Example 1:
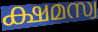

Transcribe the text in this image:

ക്ഷമസ്വ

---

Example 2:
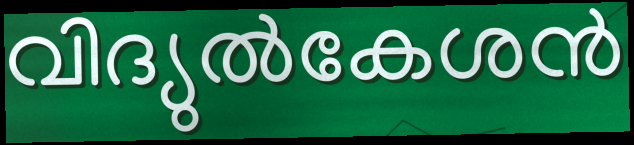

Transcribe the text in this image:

വിദ്യുൽകേശൻ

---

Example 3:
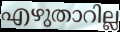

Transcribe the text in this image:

എഴുതാറില്ല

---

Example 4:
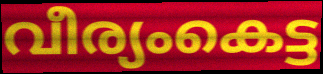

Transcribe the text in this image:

വീര്യംകെട്ട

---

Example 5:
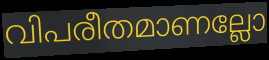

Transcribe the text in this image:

വിപരീതമാണല്ലോ